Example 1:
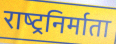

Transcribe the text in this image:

राष्ट्रनिर्माता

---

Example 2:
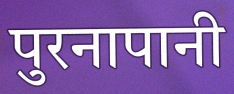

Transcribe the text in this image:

पुरनापानी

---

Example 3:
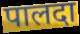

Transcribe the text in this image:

पालदा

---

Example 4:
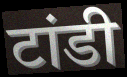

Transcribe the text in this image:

टांडी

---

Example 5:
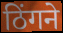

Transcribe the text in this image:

ठिंगने